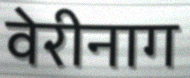
वेरीनाग